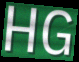
HG